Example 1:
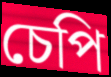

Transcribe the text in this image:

চেপি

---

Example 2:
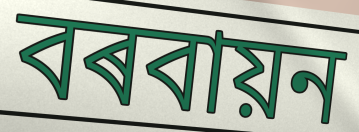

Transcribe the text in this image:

বৰবায়ন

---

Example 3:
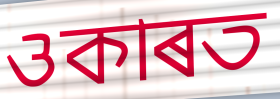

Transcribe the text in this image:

ওকাৰত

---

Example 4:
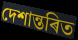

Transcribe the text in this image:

দেশান্তৰিত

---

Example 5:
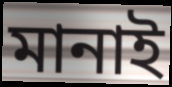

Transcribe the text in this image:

মানাই